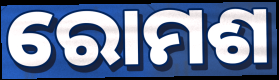
ରୋମଶ